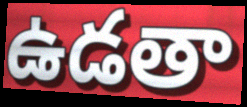
ఉడతా